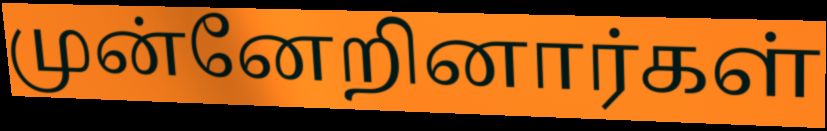
முன்னேறினார்கள்